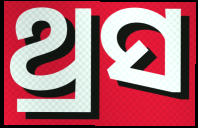
ଥ୍ରସ